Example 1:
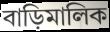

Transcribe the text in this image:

বাড়িমালিক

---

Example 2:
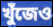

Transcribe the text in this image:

খুঁজেও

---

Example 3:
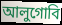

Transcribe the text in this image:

আলুগোবি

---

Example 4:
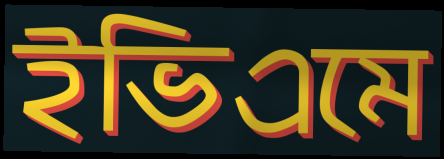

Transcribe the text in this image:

ইভিএমে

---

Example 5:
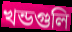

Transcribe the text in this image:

খন্ডগুলি